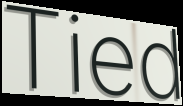
Tied